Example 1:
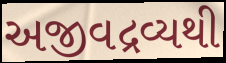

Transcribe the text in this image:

અજીવદ્રવ્યથી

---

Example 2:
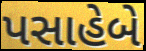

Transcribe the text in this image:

પસાહેબે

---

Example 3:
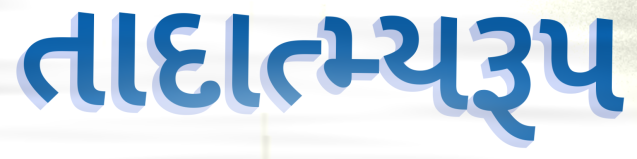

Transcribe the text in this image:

તાદાત્મ્યરૂપ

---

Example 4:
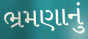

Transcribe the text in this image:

ભ્રમણાનું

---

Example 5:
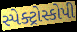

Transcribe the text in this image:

સ્પેક્ટ્રોસ્કોપી